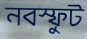
নবস্ফুট